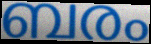
ബരം